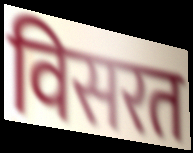
विसरत